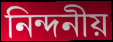
নিন্দনীয়